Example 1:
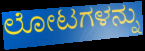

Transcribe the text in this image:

ಲೋಟಗಳನ್ನು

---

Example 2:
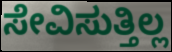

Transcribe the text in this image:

ಸೇವಿಸುತ್ತಿಲ್ಲ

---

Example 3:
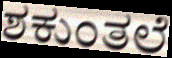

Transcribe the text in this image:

ಶಕುಂತಲೆ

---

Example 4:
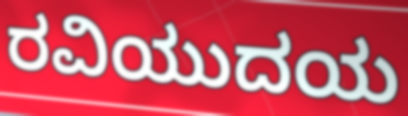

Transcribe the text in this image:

ರವಿಯುದಯ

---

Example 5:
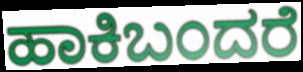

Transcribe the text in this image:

ಹಾಕಿಬಂದರೆ